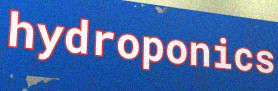
hydroponics